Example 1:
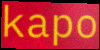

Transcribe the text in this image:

kapo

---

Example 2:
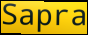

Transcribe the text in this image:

Sapra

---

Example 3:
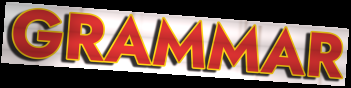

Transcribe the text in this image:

GRAMMAR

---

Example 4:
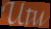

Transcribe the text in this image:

Utu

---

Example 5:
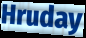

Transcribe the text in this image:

Hruday